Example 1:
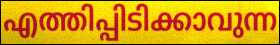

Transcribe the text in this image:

എത്തിപ്പിടിക്കാവുന്ന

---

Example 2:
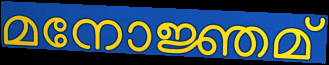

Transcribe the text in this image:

മനോജ്ഞമ്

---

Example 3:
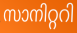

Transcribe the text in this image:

സാനിറ്ററി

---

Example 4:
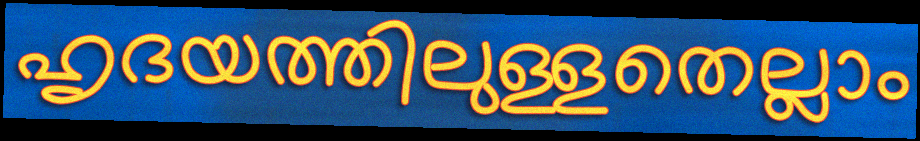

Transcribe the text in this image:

ഹൃദയത്തിലുള്ളതെല്ലാം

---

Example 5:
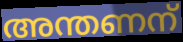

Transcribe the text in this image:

അന്തണന്